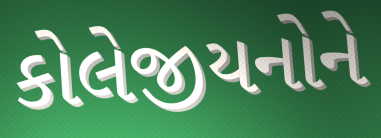
કોલેજીયનોને